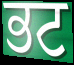
ਭਟ